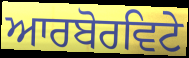
ਆਰਬੋਰਵਿਟੇ